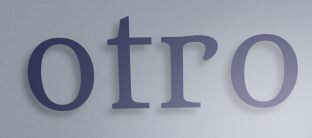
otro